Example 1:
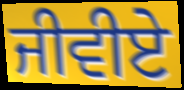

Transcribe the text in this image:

ਜੀਵੀਏ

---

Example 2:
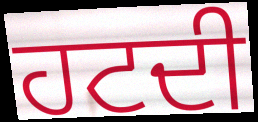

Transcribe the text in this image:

ਹਟਦੀ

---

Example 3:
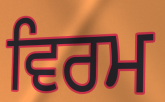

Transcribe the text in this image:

ਵਿਰਮ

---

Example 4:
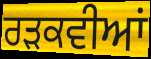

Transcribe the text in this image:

ਰੜਕਵੀਆਂ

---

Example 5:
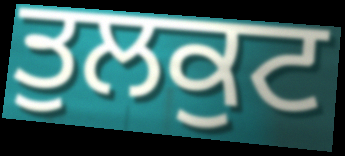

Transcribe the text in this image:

ਤੁਲਕੁਟ